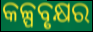
କଳ୍ପବୃକ୍ଷର